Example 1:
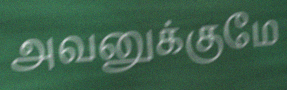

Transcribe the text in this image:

அவனுக்குமே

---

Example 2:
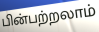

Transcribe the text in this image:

பின்பற்றலாம்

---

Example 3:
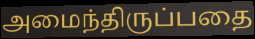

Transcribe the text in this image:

அமைந்திருப்பதை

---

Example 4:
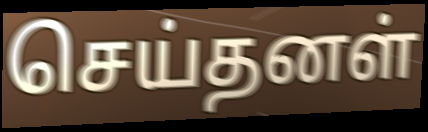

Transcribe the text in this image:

செய்தனள்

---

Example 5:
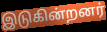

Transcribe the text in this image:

இடுகின்றனர்